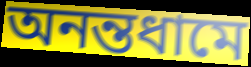
অনন্তধামে